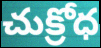
చుక్రోధ